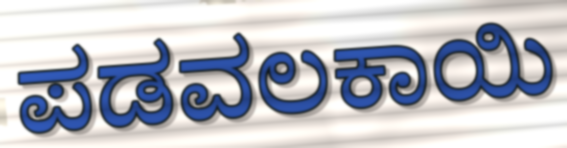
ಪಡವಲಕಾಯಿ